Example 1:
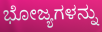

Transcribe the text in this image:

ಭೋಜ್ಯಗಳನ್ನು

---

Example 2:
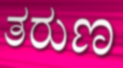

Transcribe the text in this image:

ತರುಣ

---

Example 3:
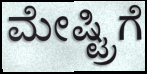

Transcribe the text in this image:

ಮೇಷ್ಟ್ರಿಗೆ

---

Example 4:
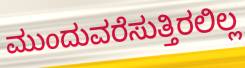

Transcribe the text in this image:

ಮುಂದುವರೆಸುತ್ತಿರಲಿಲ್ಲ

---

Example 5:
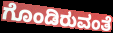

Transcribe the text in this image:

ಗೊಂಡಿರುವಂತೆ